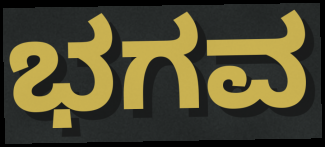
ಭಗವ